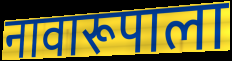
नावारूपाला